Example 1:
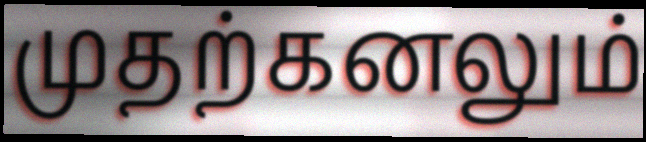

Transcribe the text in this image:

முதற்கனலும்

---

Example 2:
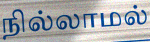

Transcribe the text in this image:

நில்லாமல்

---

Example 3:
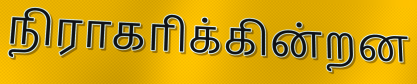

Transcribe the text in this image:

நிராகரிக்கின்றன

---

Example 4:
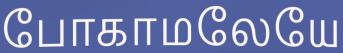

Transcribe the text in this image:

போகாமலேயே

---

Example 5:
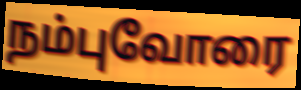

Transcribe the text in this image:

நம்புவோரை